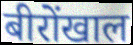
बीरोंखाल